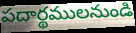
పదార్థములనుండి